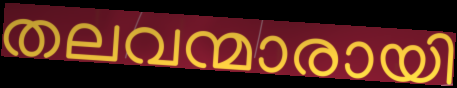
തലവന്മാരായി